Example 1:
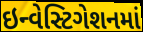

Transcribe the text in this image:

ઇન્વેસ્ટિગેશનમાં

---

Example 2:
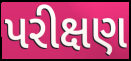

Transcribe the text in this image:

પરીક્ષણ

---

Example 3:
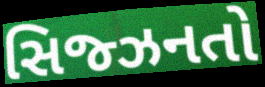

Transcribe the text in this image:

સિજ્ઝનતો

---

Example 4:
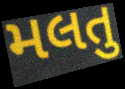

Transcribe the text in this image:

મલતુ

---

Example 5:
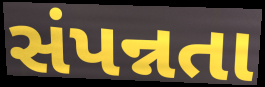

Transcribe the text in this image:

સંપન્નતા